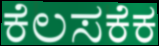
ಕೆಲಸಕೆಕ